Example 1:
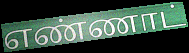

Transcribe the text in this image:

எண்ணாட்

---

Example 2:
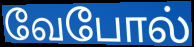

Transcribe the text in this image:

வேபோல்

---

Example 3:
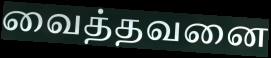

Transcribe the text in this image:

வைத்தவனை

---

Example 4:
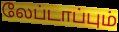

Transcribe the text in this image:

லேப்டாப்பும்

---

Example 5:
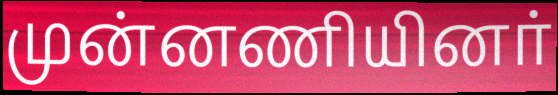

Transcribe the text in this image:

முன்னணியினர்